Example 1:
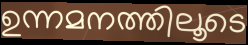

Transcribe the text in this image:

ഉന്നമനത്തിലൂടെ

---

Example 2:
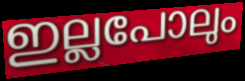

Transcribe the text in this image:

ഇല്ലപോലും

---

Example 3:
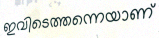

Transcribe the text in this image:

ഇവിടെത്തന്നെയാണ്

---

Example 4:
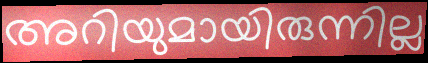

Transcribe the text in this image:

അറിയുമായിരുന്നില്ല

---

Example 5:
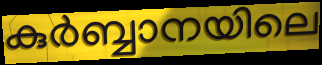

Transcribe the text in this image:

കുർബ്ബാനയിലെ